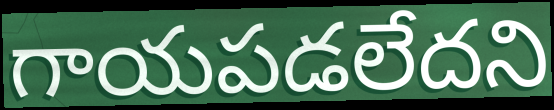
గాయపడలేదని